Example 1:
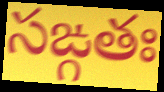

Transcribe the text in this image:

సఙ్గతః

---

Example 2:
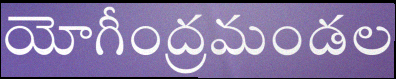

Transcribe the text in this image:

యోగీంద్రమండల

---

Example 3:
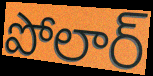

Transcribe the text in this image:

పోలార్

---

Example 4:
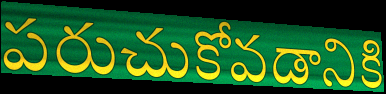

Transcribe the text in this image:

పరుచుకోవడానికి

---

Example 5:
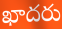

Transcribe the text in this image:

ఖాదరు